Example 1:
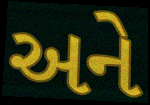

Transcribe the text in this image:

અને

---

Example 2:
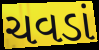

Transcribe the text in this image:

ચવડાં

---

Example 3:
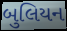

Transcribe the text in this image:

બુલિયન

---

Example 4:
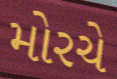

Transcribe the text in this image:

મોરચે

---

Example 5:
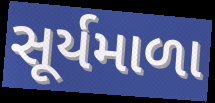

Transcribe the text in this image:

સૂર્યમાળા